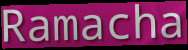
Ramacha